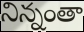
నిన్నంతా